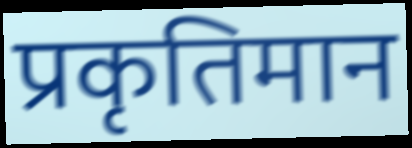
प्रकृतिमान